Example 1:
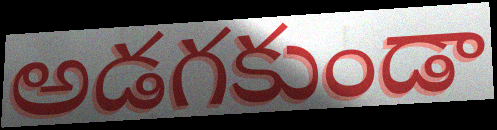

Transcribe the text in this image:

అడగకుండా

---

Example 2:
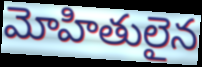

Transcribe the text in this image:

మోహితులైన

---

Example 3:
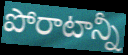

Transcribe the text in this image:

పోరాటాన్నీ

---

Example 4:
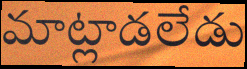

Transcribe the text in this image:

మాట్లాడలేడు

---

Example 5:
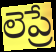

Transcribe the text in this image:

లెప్రే